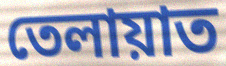
তেলায়াত